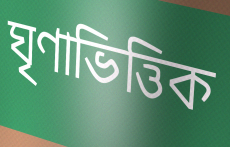
ঘৃণাভিত্তিক